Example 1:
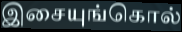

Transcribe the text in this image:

இசையுங்கொல்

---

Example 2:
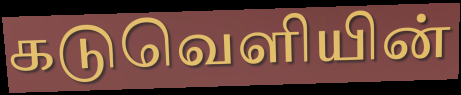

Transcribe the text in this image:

கடுவெளியின்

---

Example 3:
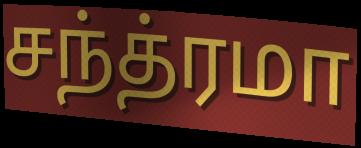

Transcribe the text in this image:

சந்த்ரமா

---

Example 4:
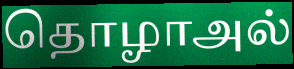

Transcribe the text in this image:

தொழாஅல்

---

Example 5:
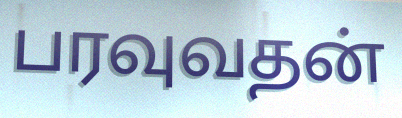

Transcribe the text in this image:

பரவுவதன்